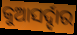
କୁଆସର୍ଦ୍ଦାର